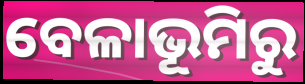
ବେଳାଭୂମିରୁ